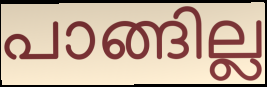
പാങ്ങില്ല